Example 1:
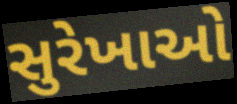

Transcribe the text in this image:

સુરેખાઓ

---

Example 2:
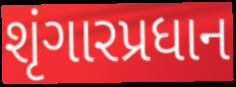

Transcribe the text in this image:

શૃંગારપ્રધાન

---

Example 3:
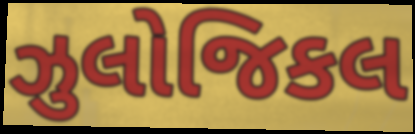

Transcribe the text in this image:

ઝુલોજિકલ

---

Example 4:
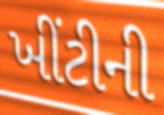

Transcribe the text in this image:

ખીંટીની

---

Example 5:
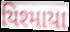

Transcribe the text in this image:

યિશ્માયા